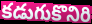
కడుగుకొనిరి